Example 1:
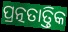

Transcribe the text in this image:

ପ୍ରତ୍ନତାତ୍ତିକ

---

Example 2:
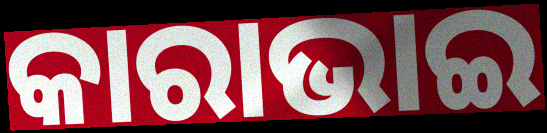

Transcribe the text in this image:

କାରାଭାଇ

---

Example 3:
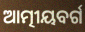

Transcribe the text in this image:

ଆତ୍ମୀୟବର୍ଗ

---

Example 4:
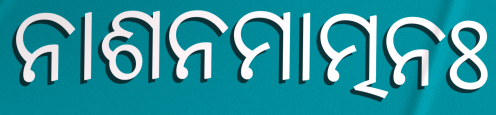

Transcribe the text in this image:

ନାଶନମାତ୍ମନଃ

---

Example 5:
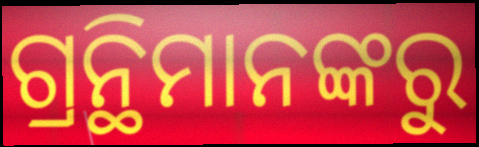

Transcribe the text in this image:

ଗ୍ରନ୍ଥିମାନଙ୍କରୁ